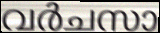
വർചസാ